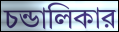
চন্ডালিকার